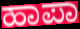
ಹಾಪಾ